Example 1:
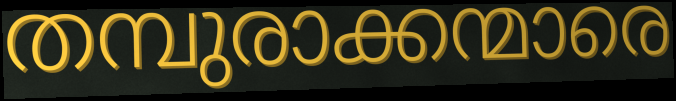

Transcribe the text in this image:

തമ്പുരാക്കന്മാരെ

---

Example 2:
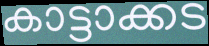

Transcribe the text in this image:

കാട്ടാക്കട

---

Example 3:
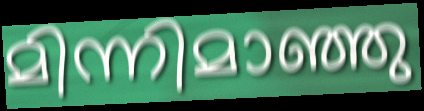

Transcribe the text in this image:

മിന്നിമാഞ്ഞു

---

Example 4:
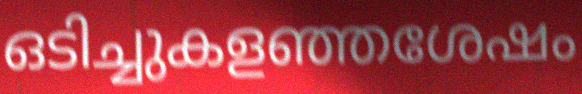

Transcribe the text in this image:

ഒടിച്ചുകളഞ്ഞശേഷം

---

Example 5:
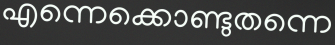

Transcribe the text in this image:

എന്നെക്കൊണ്ടുതന്നെ